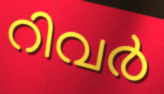
റിവർ